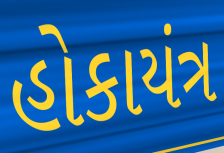
હોકાયંત્ર